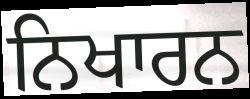
ਨਿਖਾਰਨ